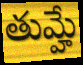
తుమ్హే